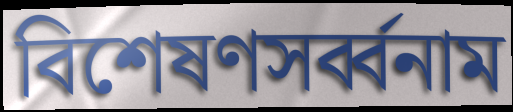
বিশেষণসৰ্ব্বনাম